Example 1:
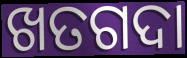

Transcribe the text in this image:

ଖତଗଦା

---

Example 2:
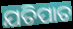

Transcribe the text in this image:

ଯତିପାତ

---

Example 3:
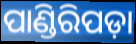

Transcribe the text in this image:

ପାଣ୍ଡିରିପଡ଼ା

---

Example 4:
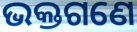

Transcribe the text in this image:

ଭକ୍ତଗଣେ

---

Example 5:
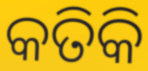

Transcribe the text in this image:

କତିକି